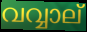
വവ്വാല്